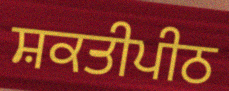
ਸ਼ਕਤੀਪੀਠ